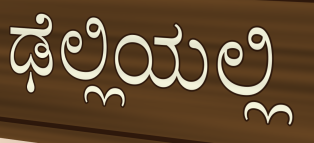
ಢೆಲ್ಲಿಯಲ್ಲಿ